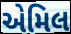
એમિલ